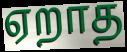
ஏறாத